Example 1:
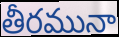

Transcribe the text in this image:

తీరమునా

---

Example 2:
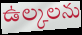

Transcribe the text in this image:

ఉల్కలను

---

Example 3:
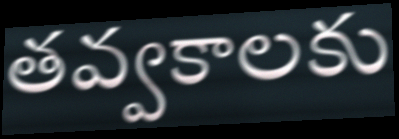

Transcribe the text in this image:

తవ్వకాలకు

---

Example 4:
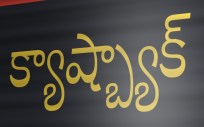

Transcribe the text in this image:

క్యాష్బ్యాక్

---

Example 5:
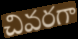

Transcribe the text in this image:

చివరగా